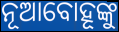
ନୂଆବୋହୂଙ୍କୁ